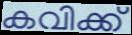
കവിക്ക്